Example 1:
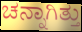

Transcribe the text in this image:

ಚನ್ನಾಗಿತ್ತು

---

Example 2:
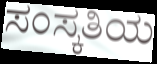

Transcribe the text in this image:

ಸಂಸ್ಕತಿಯ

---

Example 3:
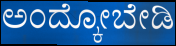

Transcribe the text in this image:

ಅಂದ್ಕೋಬೇಡಿ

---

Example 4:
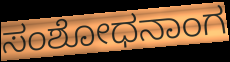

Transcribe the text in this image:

ಸಂಶೋಧನಾಂಗ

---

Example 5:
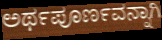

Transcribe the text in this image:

ಅರ್ಥಪೂರ್ಣವನ್ನಾಗಿ